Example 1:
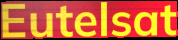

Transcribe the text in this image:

Eutelsat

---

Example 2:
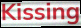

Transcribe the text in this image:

Kissing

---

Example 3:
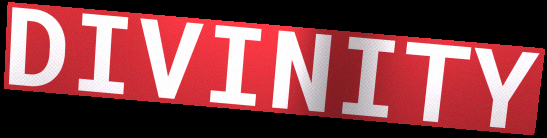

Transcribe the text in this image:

DIVINITY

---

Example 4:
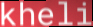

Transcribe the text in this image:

kheli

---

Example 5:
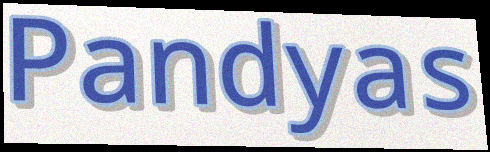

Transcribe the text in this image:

Pandyas